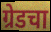
ग्रेडचा